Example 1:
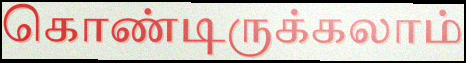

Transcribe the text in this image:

கொண்டிருக்கலாம்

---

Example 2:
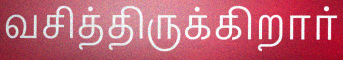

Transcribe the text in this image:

வசித்திருக்கிறார்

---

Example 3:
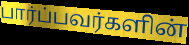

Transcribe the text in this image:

பார்ப்பவர்களின்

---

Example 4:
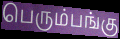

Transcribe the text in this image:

பெரும்பங்கு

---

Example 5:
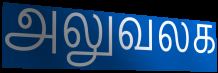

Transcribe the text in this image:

அலுவலக